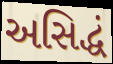
અસિદ્ધં